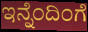
ಇನ್ನೆಂದಿಂಗೆ